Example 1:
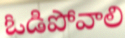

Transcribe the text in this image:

ఓడిపోవాలి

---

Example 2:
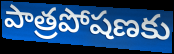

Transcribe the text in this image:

పాత్రపోషణకు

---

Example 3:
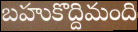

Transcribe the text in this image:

బహుకొద్దిమంది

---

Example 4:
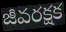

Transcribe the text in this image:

జీవరక్షక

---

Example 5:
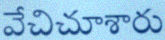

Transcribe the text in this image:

వేచిచూశారు